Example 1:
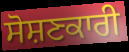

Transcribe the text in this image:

ਸੋਸ਼ਣਕਾਰੀ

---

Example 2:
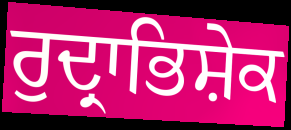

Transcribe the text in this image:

ਰੁਦ੍ਰਾਭਿਸ਼ੇਕ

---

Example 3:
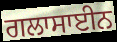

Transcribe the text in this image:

ਗਲਾਸਾਈਨ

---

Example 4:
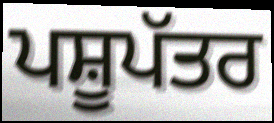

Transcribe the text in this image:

ਪਸ਼ੂਪੱਤਰ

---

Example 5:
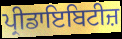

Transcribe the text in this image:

ਪ੍ਰੀਡਾਇਬਿਟੀਜ਼